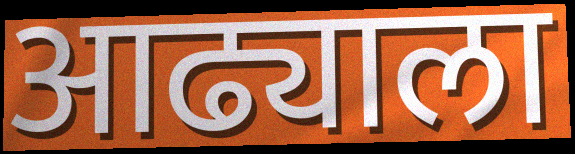
आढ्याला